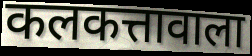
कलकत्तावाला